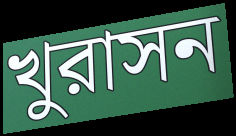
খুরাসন